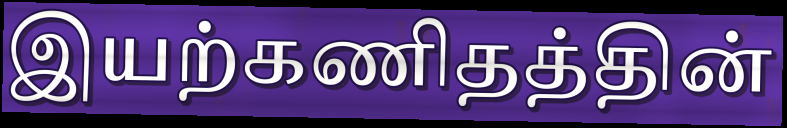
இயற்கணிதத்தின்